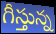
గీస్తున్న